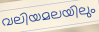
വലിയമലയിലും